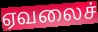
ஏவலைச்